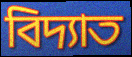
বিদ্যাত